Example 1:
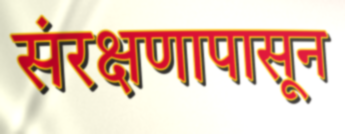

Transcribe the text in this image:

संरक्षणापासून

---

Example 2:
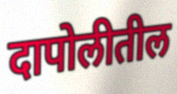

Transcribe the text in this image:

दापोलीतील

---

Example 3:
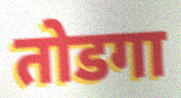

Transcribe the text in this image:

तोडगा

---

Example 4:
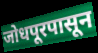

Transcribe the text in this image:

जोधपूरपासून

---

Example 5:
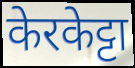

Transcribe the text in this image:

केरकेट्टा